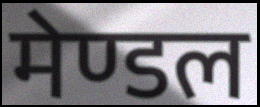
मेण्डल